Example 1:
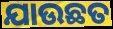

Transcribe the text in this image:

ଯାଉଛତ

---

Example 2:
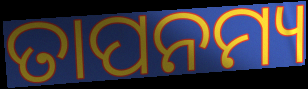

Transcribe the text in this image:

ତାପନମ୍ୟ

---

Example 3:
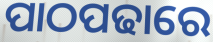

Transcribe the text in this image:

ପାଠପଢାରେ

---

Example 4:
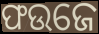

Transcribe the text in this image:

ଫଉଜେ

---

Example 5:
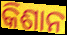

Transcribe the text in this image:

କିଶାନ